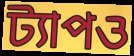
ট্যাপও